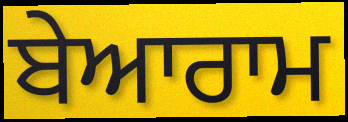
ਬੇਆਰਾਮ